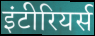
इंटीरियर्स